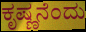
ಕೃಷ್ಣನೆಂದು